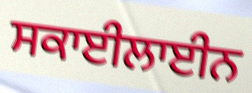
ਸਕਾਈਲਾਈਨ